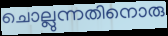
ചൊല്ലുന്നതിനൊരു